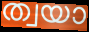
ത്വയാ